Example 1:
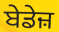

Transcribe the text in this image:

ਬੇਡੇਜ਼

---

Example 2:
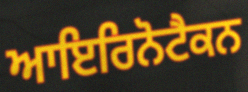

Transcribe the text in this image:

ਆਇਰਿਨੋਟੈਕਨ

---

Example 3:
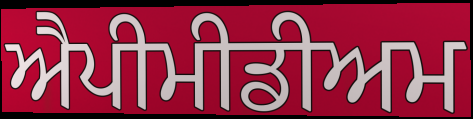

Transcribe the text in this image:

ਐਪੀਮੀਡੀਅਮ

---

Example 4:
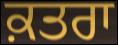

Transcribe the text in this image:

ਕ਼ਤਰਾ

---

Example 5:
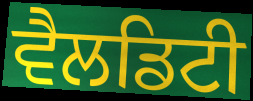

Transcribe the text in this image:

ਵੈਲਡਿਟੀ